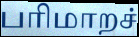
பரிமாறச்